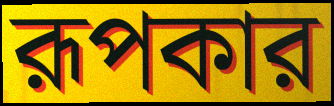
রূপকার